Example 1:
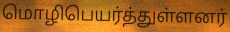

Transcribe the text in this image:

மொழிபெயர்த்துள்ளனர்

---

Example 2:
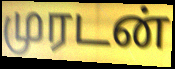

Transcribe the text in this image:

முரடன்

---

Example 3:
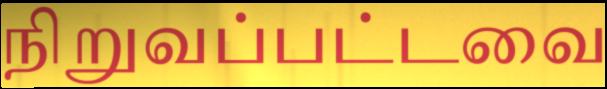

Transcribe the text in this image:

நிறுவப்பட்டவை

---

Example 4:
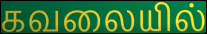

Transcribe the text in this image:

கவலையில்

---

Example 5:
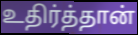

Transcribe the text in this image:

உதிர்த்தான்